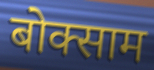
बोक्साम